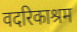
वदरिकाश्रम